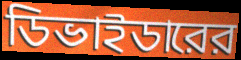
ডিভাইডারের